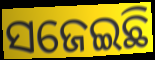
ସଜେଇଛି